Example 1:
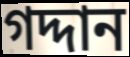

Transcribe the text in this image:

গদ্দান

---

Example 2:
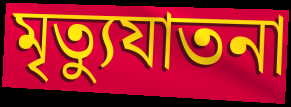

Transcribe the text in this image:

মৃত্যুযাতনা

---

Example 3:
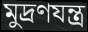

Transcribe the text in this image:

মুদ্রণযন্ত্র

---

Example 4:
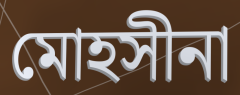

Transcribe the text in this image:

মোহসীনা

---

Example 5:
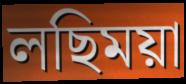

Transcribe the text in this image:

লছিময়া